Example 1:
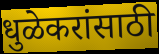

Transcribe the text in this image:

धुळेकरांसाठी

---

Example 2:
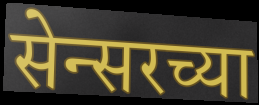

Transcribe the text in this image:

सेन्सरच्या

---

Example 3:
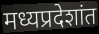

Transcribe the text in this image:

मध्यप्रदेशांत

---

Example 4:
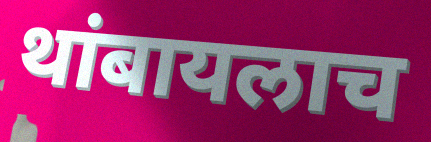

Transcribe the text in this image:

थांबायलाच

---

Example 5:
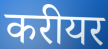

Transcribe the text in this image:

करीयर